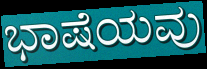
ಭಾಷೆಯವು